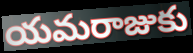
యమరాజుకు